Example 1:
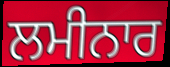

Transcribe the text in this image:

ਲਮੀਨਾਰ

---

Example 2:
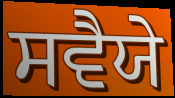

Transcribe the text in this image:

ਸਵੈਯੇ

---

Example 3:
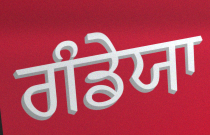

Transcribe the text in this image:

ਗੰਡੇਯਾ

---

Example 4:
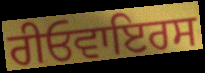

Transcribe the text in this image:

ਰੀਓਵਾਇਰਸ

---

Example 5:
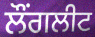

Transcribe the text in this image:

ਲੌਂਗਲੀਟ